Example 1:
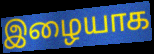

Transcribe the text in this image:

இழையாக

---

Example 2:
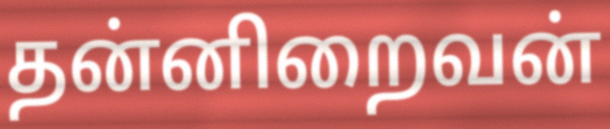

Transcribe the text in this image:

தன்னிறைவன்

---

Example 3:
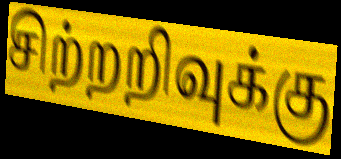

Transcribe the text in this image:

சிற்றறிவுக்கு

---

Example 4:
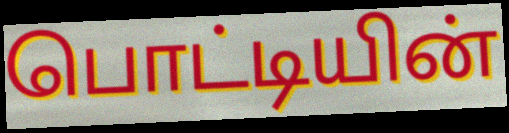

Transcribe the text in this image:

பொட்டியின்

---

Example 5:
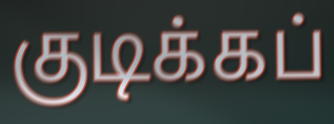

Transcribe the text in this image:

குடிக்கப்